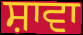
ਸ਼ਾਵਾ